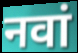
नवां